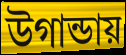
উগান্ডায়